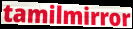
tamilmirror